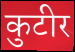
कुटीर